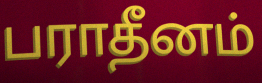
பராதீனம்